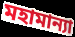
মহামান্যা